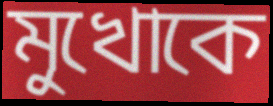
মুখোকে